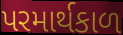
પરમાર્થકાળ